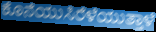
ಕೊನೆಯುಸಿರೆಳೆಯುತ್ತಾಳೆ